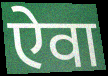
ऐवा